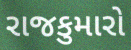
રાજકુમારો